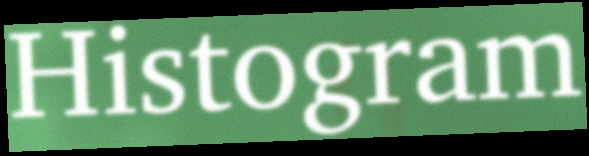
Histogram